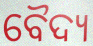
ବୈଦ୍ଯ